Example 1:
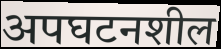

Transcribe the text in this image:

अपघटनशील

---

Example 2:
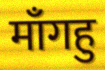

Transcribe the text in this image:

माँगहु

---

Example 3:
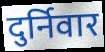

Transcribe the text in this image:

दुर्निवार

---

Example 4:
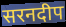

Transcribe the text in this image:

सरनदीप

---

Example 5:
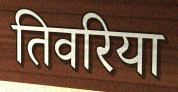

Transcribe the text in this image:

तिवरिया